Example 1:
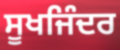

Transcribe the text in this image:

ਸੂਖਜਿੰਦਰ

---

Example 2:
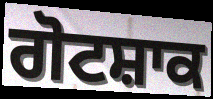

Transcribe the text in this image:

ਗੋਟਸ਼ਾਕ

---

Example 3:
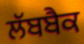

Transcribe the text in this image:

ਲੱਬਬੈਕ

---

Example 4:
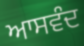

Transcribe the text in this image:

ਆਸਵੰਦ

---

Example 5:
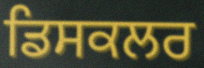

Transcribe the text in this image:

ਡਿਸਕਲਰ